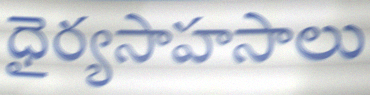
ధైర్యసాహసాలు